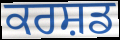
ਕਰਸ਼ਡ